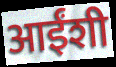
आईंशी